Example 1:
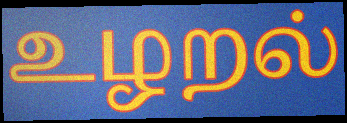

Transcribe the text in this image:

உழறல்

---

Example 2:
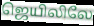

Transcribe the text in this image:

ஜெயிலிலே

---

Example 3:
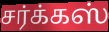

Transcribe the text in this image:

சர்க்கஸ்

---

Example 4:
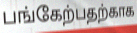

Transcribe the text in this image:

பங்கேற்பதற்காக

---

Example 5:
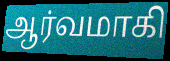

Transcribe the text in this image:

ஆர்வமாகி